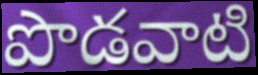
పొడవాటి